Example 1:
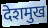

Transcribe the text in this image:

देशमुख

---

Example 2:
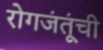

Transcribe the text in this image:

रोगजंतूंची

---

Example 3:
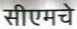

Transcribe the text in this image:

सीएमचे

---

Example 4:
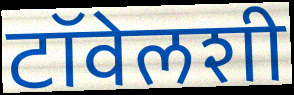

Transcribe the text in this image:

टॉवेलशी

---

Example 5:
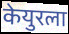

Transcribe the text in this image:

केयुरला